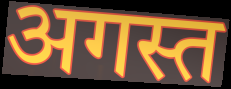
अगस्‍त